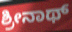
ಶ್ರೀನಾಥ್